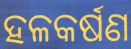
ହଳକର୍ଷଣ